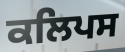
ਕਲਿਪਸ